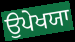
ਉਪੇਖਯਾ